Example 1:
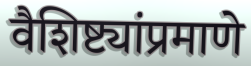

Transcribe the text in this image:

वैशिष्ट्यांप्रमाणे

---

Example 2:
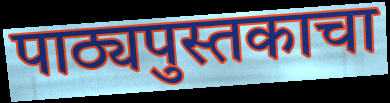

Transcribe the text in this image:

पाठ्यपुस्तकाचा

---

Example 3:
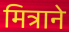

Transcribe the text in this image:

मित्राने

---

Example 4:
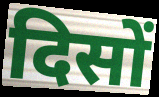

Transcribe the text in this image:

दिसों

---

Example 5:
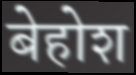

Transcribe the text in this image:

बेहोश